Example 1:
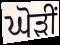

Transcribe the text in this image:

ਘੋੜੀਂ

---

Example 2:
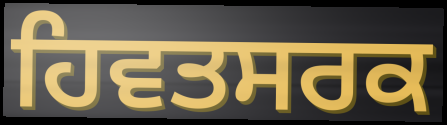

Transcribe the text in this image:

ਹਿਵਤਸਰਕ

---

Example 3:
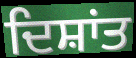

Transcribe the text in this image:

ਦਿਸ਼ਾਂਤ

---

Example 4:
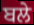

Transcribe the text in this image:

ਬਲੇ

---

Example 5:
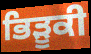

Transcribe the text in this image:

ਭਿੜੂਕੀ